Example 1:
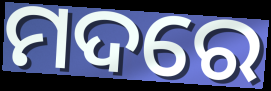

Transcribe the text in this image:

ମଦରେ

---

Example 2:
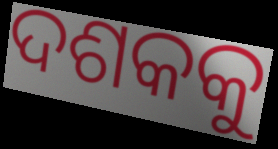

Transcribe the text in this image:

ଦଶକକୁ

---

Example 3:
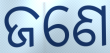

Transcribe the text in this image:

ଜଣେ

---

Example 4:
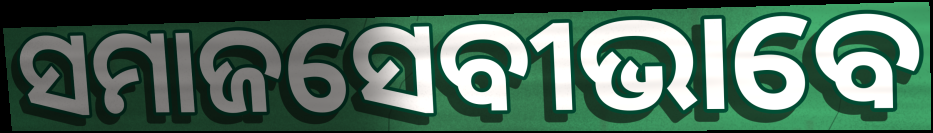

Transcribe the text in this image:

ସମାଜସେବୀଭାବେ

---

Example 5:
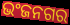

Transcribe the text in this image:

ଭଂଜନଗର